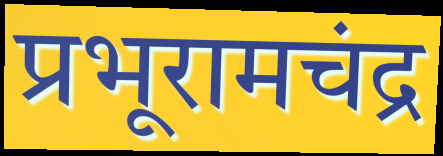
प्रभूरामचंद्र